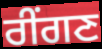
ਰੀਂਗਣ